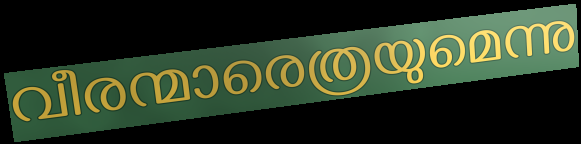
വീരന്മാരെത്രയുമെന്നു